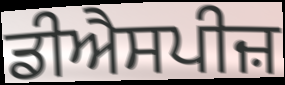
ਡੀਐਸਪੀਜ਼